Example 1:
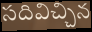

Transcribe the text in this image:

సదివిచ్చిన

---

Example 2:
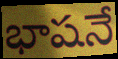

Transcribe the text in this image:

భాషనే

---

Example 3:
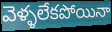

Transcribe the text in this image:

వెళ్ళలేకపోయినా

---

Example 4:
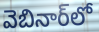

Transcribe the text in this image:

వెబినార్‌లో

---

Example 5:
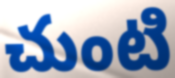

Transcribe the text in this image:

చుంటి